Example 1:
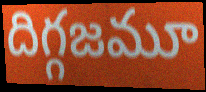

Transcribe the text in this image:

దిగ్గజమూ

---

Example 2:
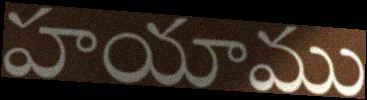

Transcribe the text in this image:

హయాము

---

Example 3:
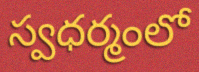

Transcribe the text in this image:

స్వధర్మంలో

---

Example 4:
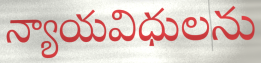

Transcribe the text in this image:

న్యాయవిధులను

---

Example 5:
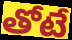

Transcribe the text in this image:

తోటే